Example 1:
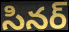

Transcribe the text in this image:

సినర్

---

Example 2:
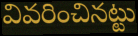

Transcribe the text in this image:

వివరించినట్టు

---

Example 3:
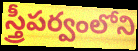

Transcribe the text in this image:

స్త్రీపర్వంలోని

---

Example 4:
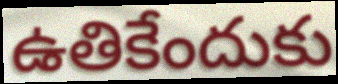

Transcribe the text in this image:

ఉతికేందుకు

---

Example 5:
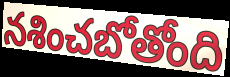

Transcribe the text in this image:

నశించబోతోంది